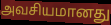
அவசியமானது